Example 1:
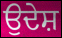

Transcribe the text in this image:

ਉਦੇਸ਼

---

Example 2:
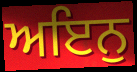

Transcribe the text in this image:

ਅਇਨੁ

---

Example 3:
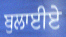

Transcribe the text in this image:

ਬੁਲਾਈਏ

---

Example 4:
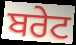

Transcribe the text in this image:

ਬਰੇਟ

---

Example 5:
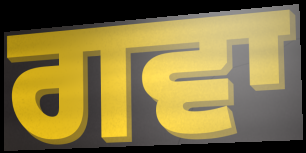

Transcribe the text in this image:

ਗਵਾ